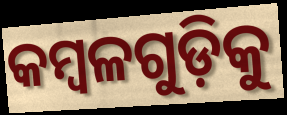
କମ୍ବଳଗୁଡ଼ିକୁ